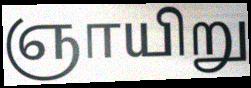
ஞாயிறு